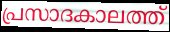
പ്രസാദകാലത്ത്